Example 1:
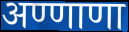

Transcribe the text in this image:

अण्णाणा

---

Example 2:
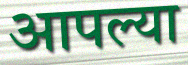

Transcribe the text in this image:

आपल्या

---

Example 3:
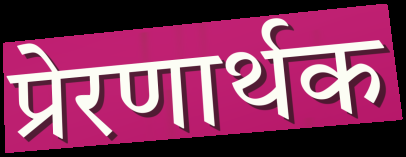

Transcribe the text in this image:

प्रेरणार्थक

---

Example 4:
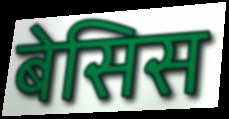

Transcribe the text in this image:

बेसिस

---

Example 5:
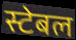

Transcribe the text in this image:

स्‍टेबल